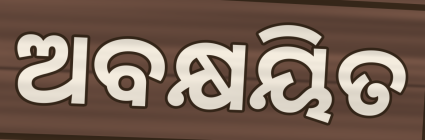
ଅବକ୍ଷୟିତ